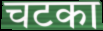
चटका